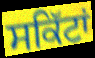
ਸਕਿੱਟਾਂ